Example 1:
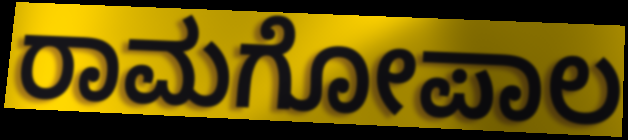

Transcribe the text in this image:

ರಾಮಗೋಪಾಲ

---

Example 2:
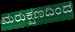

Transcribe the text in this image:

ಮರುಕ್ಷಣದಿಂದ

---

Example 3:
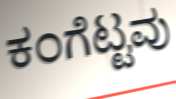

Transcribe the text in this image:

ಕಂಗೆಟ್ಟವು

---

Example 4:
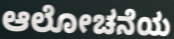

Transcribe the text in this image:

ಆಲೋಚನೆಯ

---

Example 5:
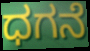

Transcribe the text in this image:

ಧಗನೆ